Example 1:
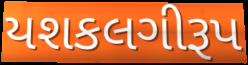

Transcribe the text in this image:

યશકલગીરૂપ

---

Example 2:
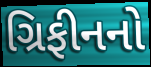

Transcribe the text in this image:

ગ્રિફીનનો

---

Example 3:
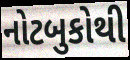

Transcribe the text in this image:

નોટબુકોથી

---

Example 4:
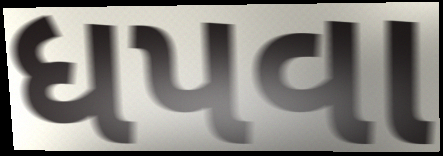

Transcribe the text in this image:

ધપવા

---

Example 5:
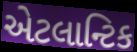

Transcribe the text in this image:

એટલાન્ટિક